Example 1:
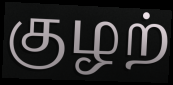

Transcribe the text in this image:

குழற்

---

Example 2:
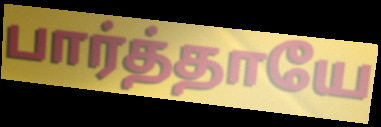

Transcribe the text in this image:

பார்த்தாயே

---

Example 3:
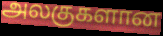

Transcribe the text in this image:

அலகுகளான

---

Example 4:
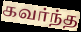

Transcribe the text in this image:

கவர்ந்த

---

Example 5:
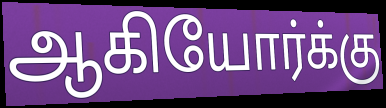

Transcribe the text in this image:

ஆகியோர்க்கு